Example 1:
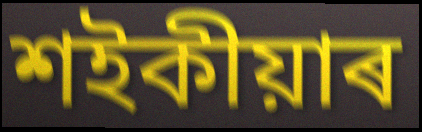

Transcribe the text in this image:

শইকীয়াৰ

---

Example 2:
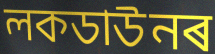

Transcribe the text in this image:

লকডাউনৰ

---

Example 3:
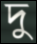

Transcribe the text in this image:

দু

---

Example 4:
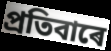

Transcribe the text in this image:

প্ৰতিবাৰে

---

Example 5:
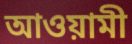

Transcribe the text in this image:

আওয়ামী